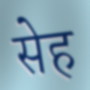
सेह